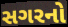
સગરનો